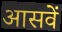
आसवें